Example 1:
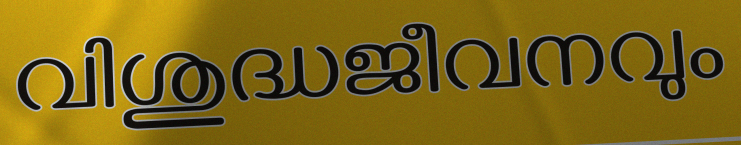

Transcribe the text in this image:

വിശുദ്ധജീവനവും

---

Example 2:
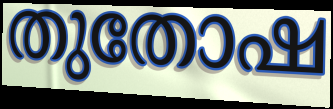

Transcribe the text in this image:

തുതോഷ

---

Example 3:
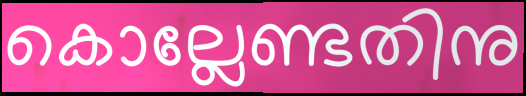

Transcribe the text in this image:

കൊല്ലേണ്ടതിനു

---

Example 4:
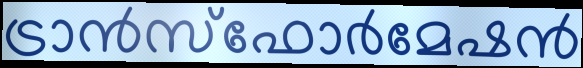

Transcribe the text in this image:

ട്രാൻസ്ഫോർമേഷൻ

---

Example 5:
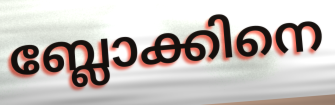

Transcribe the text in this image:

ബ്ലോക്കിനെ